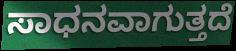
ಸಾಧನವಾಗುತ್ತದೆ